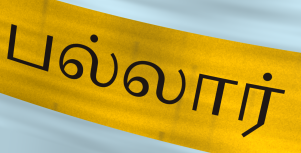
பல்லார்